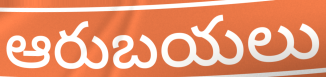
ఆరుబయలు